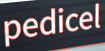
pedicel